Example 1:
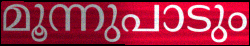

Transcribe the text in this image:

മൂന്നുപാടും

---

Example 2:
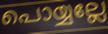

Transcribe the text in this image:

പൊയ്യല്ലേ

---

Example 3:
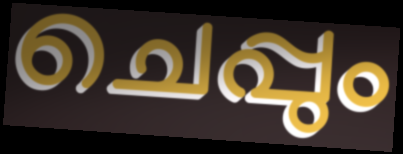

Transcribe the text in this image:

ചെപ്പും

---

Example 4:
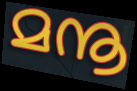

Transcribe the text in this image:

മനൂ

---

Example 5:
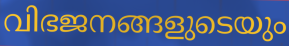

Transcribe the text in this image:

വിഭജനങ്ങളുടെയും